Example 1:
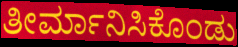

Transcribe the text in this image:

ತೀರ್ಮಾನಿಸಿಕೊಂಡು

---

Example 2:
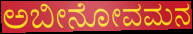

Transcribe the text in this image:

ಅಬೀನೋವಮನ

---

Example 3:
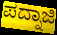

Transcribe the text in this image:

ಪದ್ನಾಜಿ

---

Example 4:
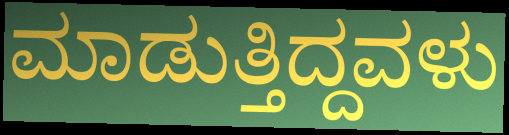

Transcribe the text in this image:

ಮಾಡುತ್ತಿದ್ದವಳು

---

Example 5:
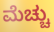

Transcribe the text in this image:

ಮೆಚ್ಚು